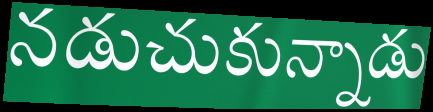
నడుచుకున్నాడు